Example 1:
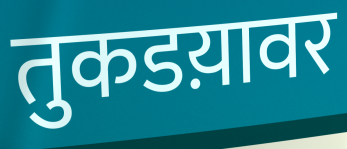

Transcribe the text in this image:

तुकडय़ावर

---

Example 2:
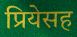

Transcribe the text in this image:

प्रियेसह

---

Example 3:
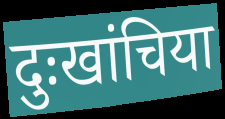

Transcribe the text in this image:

दुःखांचिया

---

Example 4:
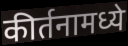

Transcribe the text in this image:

कीर्तनामध्ये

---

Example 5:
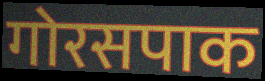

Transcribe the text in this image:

गोरसपाक